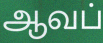
ஆவப்